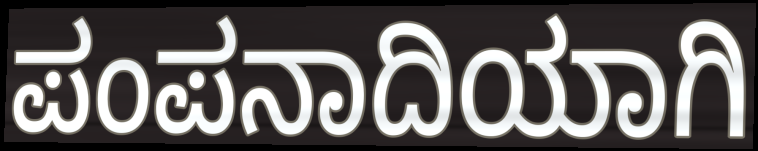
ಪಂಪನಾದಿಯಾಗಿ